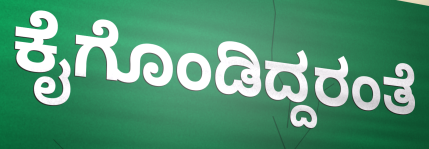
ಕೈಗೊಂಡಿದ್ದರಂತೆ